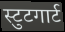
स्टुटगार्ट